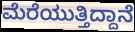
ಮೆರೆಯುತ್ತಿದ್ದಾನೆ